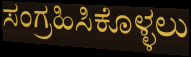
ಸಂಗ್ರಹಿಸಿಕೊಳ್ಳಲು